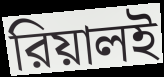
রিয়ালই